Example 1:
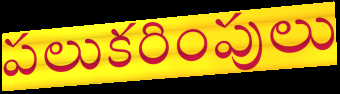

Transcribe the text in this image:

పలుకరింపులు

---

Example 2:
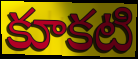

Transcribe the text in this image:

కూకటి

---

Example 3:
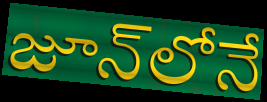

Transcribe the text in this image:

జూన్‌లోనే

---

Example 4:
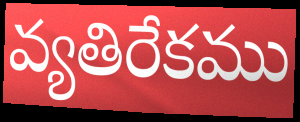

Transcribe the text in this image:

వ్యతిరేకము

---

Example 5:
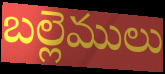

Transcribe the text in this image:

బల్లెములు